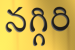
నగ్గిరి